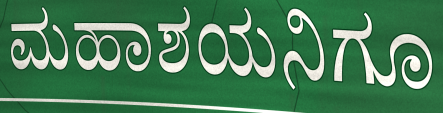
ಮಹಾಶಯನಿಗೂ